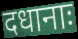
दधानाः